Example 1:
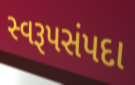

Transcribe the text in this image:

સ્વરૂપસંપદા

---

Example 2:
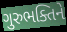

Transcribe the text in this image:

ગુરુભક્તિને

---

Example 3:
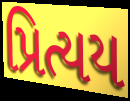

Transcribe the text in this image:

પ્રિત્યય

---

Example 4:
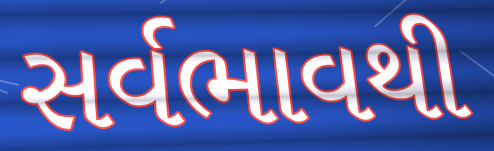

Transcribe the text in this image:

સર્વભાવથી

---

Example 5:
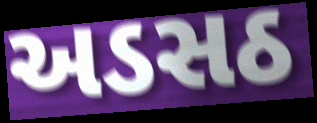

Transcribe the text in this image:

અડસઠ